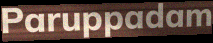
Paruppadam